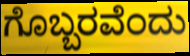
ಗೊಬ್ಬರವೆಂದು